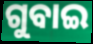
ଗୁବାଇ